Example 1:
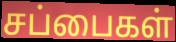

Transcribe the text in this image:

சப்பைகள்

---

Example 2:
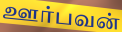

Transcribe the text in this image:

ஊர்பவன்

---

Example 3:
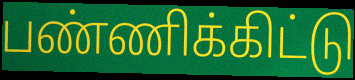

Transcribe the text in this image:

பண்ணிக்கிட்டு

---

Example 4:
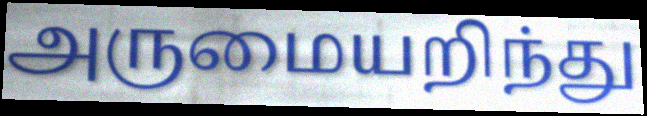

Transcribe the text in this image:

அருமையறிந்து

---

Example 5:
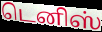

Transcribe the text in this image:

டெனிஸ்